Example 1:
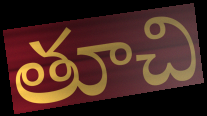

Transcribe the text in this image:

తూచి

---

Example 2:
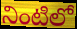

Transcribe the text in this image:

నింటిలో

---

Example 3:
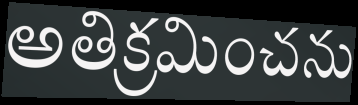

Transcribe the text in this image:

అతిక్రమించను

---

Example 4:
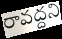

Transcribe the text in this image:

రావద్దని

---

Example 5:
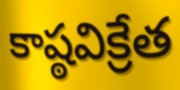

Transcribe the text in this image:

కాష్ఠవిక్రేత